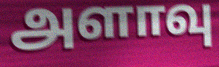
அளாவு